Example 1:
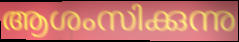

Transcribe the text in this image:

ആശംസിക്കുന്നു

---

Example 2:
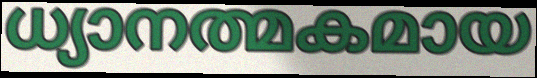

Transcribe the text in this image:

ധ്യാനത്മകമായ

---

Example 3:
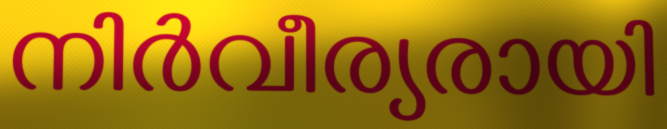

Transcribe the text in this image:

നിർവീര്യരായി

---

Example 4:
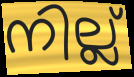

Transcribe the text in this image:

നില്ല്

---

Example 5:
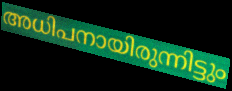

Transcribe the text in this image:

അധിപനായിരുന്നിട്ടും